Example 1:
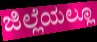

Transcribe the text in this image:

ಜಿಲ್ಲೆಯಲ್ಲೂ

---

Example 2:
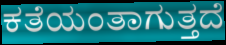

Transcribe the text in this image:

ಕತೆಯಂತಾಗುತ್ತದೆ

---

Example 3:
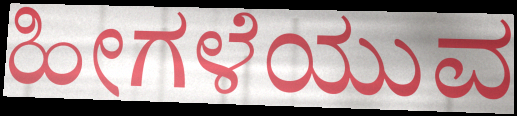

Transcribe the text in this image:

ಹೀಗಳೆಯುವ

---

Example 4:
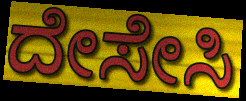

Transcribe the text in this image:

ದೇಸೇಸಿ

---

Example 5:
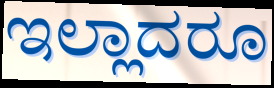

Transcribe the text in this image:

ಇಲ್ಲಾದರೂ